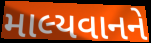
માલ્યવાનને